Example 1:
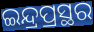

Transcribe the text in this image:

ଇନ୍ଦ୍ରପ୍ରସ୍ଥର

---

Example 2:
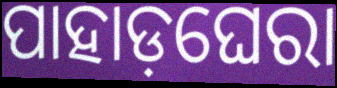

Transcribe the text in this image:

ପାହାଡ଼ଘେରା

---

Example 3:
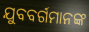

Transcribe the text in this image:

ଯୁବବର୍ଗମାନଙ୍କ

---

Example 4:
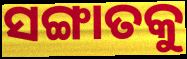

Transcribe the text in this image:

ସଙ୍ଗାତକୁ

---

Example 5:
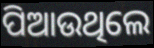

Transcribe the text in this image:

ପିଆଉଥିଲେ